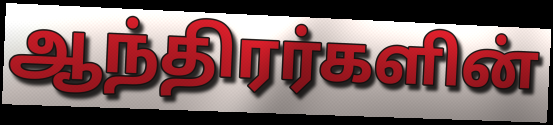
ஆந்திரர்களின்